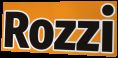
Rozzi